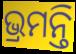
ଭ୍ରମନ୍ତି